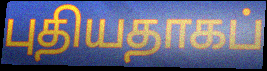
புதியதாகப்